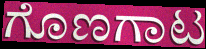
ಗೊಣಗಾಟ